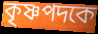
কৃষ্ণপদকে